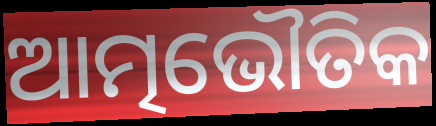
ଆତ୍ମଭୌତିକ